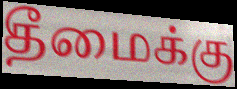
தீமைக்கு